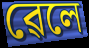
ৱেলে